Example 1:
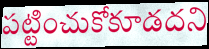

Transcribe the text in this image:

పట్టించుకోకూడదని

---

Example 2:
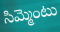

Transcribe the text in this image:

సిమ్మెంటు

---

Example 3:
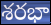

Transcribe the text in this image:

శరభా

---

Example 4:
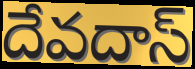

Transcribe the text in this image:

దేవదాస్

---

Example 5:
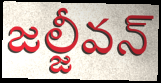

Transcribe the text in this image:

జల్జీవన్